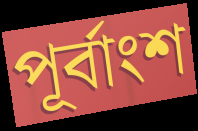
পূৰ্বাংশ